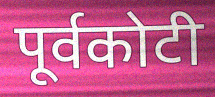
पूर्वकोटी